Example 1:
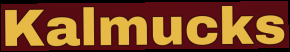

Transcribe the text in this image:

Kalmucks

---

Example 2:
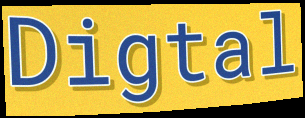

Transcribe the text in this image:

Digtal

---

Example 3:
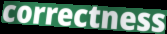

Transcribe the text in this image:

correctness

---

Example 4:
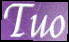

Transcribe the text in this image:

Tuo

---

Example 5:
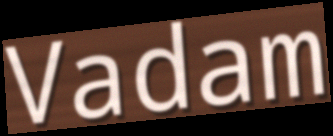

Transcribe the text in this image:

Vadam